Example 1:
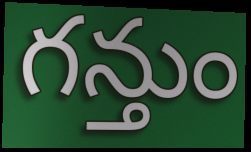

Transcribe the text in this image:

గన్తుం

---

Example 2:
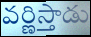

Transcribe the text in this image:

వర్ణిస్తాడు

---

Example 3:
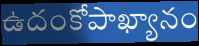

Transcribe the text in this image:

ఉదంకోపాఖ్యానం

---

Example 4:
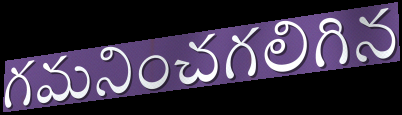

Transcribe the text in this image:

గమనించగలిగిన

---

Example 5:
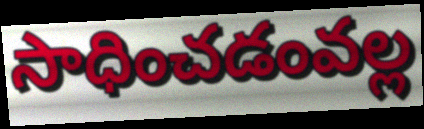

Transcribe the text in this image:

సాధించడంవల్ల